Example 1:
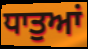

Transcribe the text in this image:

ਧਾਤੁਆਂ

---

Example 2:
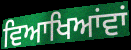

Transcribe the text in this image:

ਵਿਆਖਿਆਂਵਾਂ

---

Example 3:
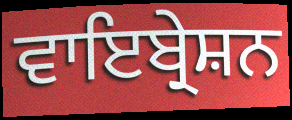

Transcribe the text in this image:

ਵਾਇਬ੍ਰੇਸ਼ਨ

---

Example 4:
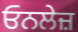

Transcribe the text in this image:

ਓਨਲੇਜ਼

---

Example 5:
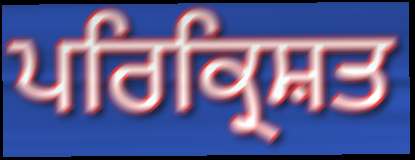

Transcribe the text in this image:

ਪਰਿਕ੍ਰਿਸ਼ਤ